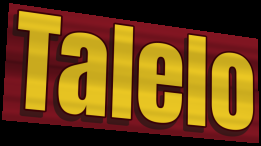
Talelo